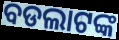
ବଡଲାଟଙ୍କ